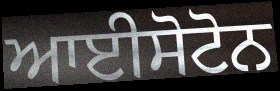
ਆਈਸੋਟੋਨ